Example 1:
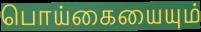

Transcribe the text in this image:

பொய்கையையும்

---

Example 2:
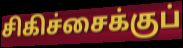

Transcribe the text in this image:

சிகிச்சைக்குப்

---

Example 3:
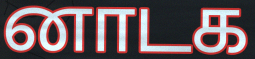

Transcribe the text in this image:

னாடக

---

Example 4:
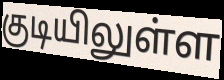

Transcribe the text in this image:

குடியிலுள்ள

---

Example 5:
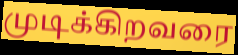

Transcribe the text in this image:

முடிக்கிறவரை